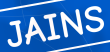
JAINS